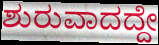
ಶುರುವಾದದ್ದೇ